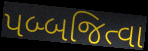
પબ્બજિત્વા